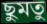
ছুমতু